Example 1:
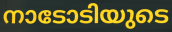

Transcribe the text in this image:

നാടോടിയുടെ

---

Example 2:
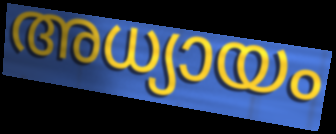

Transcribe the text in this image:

അധ്യായം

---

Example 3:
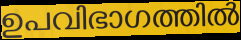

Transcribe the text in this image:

ഉപവിഭാഗത്തിൽ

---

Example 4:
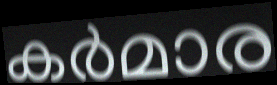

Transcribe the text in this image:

കർമാര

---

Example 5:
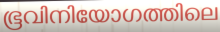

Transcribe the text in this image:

ഭൂവിനിയോഗത്തിലെ